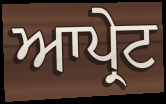
ਆਪ੍ਰੇਟ